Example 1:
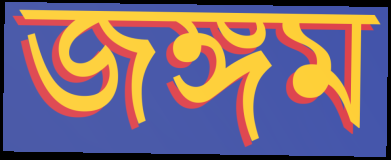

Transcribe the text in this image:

জঙ্গম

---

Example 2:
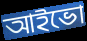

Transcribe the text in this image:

আইভো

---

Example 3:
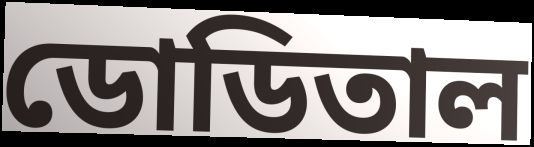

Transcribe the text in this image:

ডোডিতাল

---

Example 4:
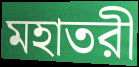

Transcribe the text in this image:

মহাতরী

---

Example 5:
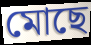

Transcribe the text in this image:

মোছে